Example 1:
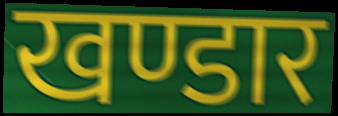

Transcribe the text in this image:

खण्डार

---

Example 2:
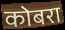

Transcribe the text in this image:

कोबरा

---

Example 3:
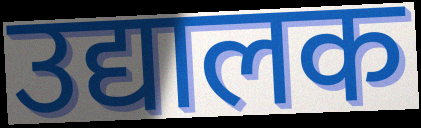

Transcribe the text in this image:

उद्यालक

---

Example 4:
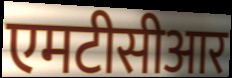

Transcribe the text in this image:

एमटीसीआर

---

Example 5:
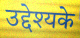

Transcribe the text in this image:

उद्देश्यके